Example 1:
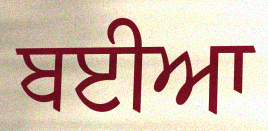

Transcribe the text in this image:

ਬਈਆ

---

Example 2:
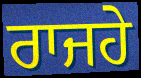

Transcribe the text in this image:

ਰਾਜਹੇ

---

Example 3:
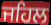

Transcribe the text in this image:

ਜਹਿਲ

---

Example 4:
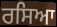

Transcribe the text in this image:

ਰਸਿਆ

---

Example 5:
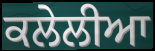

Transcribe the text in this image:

ਕਲੇਲੀਆ